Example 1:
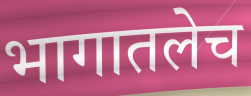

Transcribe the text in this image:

भागातलेच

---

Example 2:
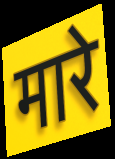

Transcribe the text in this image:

मारे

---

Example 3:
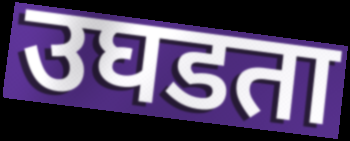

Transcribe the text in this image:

उघडता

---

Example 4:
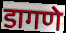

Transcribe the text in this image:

डागणे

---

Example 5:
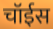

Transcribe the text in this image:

चॉईस